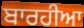
ਬਾਰਹੀਆ